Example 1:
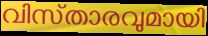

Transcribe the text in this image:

വിസ്‌താരവുമായി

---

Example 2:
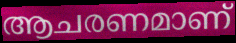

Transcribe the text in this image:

ആചരണമാണ്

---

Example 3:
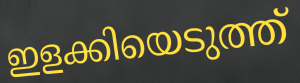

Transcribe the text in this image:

ഇളക്കിയെടുത്ത്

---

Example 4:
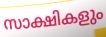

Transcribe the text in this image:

സാക്ഷികളും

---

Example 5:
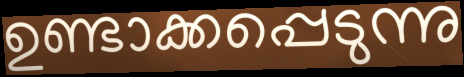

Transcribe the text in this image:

ഉണ്ടാക്കപ്പെടുന്നു